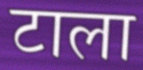
टाला